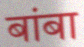
बांबा